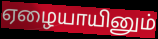
ஏழையாயினும்